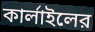
কার্লাইলের